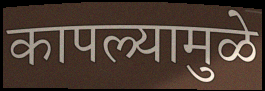
कापल्यामुळे